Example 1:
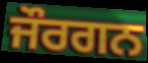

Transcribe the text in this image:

ਜੌਰਗਨ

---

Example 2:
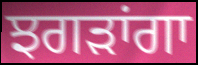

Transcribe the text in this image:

ਝਗੜਾਂਗਾ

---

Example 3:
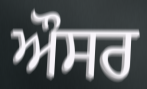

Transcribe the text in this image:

ਔਸਰ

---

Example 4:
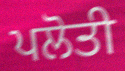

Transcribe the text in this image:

ਪਲੋਤੀ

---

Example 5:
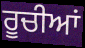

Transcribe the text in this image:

ਰੂਚੀਆਂ